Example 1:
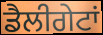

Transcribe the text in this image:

ਡੈਲੀਗੇਟਾਂ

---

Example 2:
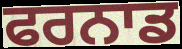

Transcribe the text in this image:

ਫਰਨਾਡ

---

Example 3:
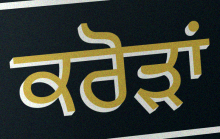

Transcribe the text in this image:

ਕਰੋਡ਼ਾਂ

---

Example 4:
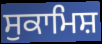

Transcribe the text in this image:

ਸੁਕਾਮਿਸ਼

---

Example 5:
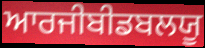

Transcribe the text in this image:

ਆਰਜੀਬੀਡਬਲਯੂ